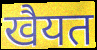
खैयत